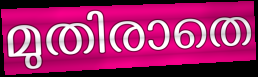
മുതിരാതെ